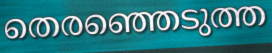
തെരഞ്ഞെടുത്ത